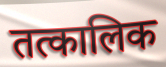
तत्कालिक